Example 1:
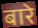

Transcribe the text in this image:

बारे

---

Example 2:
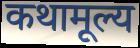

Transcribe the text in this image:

कथामूल्य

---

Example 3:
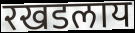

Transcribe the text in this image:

रखडलाय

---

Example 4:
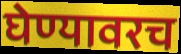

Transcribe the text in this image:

घेण्यावरच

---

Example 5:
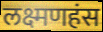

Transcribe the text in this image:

लक्ष्मणहंस